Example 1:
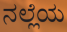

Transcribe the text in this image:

ನಲ್ಲೆಯ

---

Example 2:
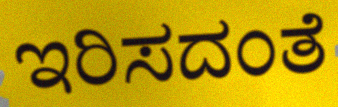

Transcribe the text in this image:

ಇರಿಸದಂತೆ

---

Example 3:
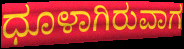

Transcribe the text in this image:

ಧೂಳಾಗಿರುವಾಗ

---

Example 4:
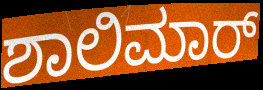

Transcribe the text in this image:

ಶಾಲಿಮಾರ್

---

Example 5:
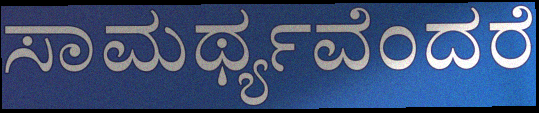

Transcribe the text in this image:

ಸಾಮರ್ಥ್ಯವೆಂದರೆ